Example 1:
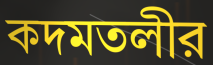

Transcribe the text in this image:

কদমতলীর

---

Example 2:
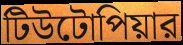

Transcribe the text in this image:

টিউটোপিয়ার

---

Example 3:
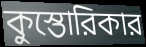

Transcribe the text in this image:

কুস্তোরিকার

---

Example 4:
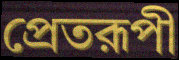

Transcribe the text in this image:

প্রেতরূপী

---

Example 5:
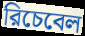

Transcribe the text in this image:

রিচেবেল